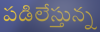
పడిలేస్తున్న